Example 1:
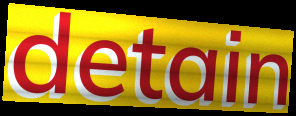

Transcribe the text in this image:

detain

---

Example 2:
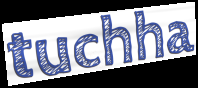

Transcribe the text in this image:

tuchha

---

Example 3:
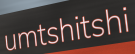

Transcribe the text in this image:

umtshitshi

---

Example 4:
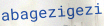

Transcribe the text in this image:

abagezigezi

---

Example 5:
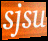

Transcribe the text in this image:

sjsu